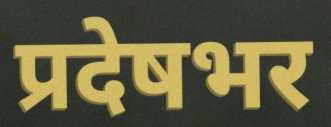
प्रदेषभर